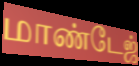
மாண்டேஜ்